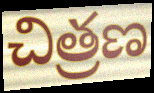
చిత్రణ